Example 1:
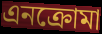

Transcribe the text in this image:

এনক্রোমা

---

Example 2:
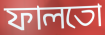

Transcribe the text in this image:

ফালতো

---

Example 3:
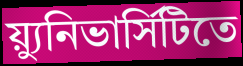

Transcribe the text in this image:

য়্যুনিভার্সিটিতে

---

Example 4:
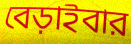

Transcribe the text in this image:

বেড়াইবার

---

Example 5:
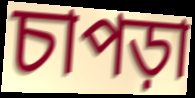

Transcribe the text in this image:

চাপড়া